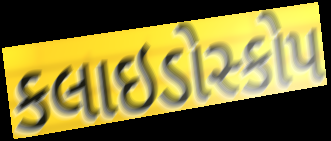
કલાઇડોસ્કોપ